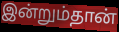
இன்றும்தான்